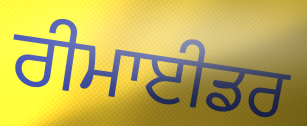
ਰੀਮਾਈਡਰ